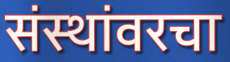
संस्थांवरचा